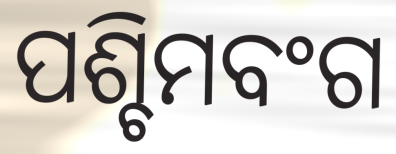
ପଶ୍ଚିମବଂଗ